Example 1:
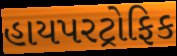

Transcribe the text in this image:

હાયપરટ્રોફિક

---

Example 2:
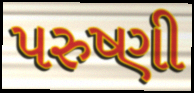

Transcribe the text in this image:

પરુષ્ણી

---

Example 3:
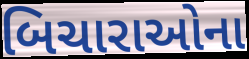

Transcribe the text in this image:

બિચારાઓના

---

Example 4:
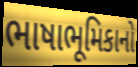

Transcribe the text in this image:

ભાષાભૂમિકાનો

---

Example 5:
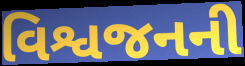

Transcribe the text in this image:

વિશ્વજનની